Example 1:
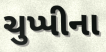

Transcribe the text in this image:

ચુપ્પીના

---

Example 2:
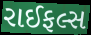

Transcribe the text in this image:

રાઈફલ્સ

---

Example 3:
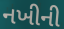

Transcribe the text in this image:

નખીની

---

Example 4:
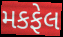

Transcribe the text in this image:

મકફેલ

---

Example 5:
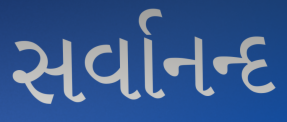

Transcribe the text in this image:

સર્વાનન્દ